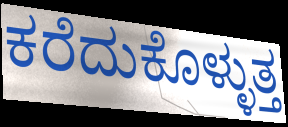
ಕರೆದುಕೊಳ್ಳುತ್ತ